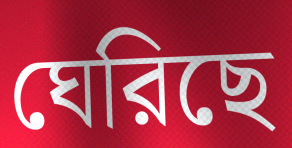
ঘেরিছে